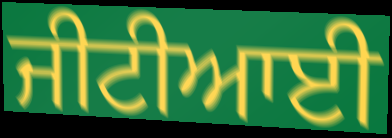
ਜੀਟੀਆਈ